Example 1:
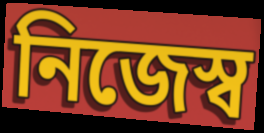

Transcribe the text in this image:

নিজেস্ব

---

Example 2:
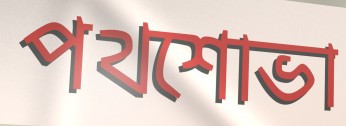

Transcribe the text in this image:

পথশোভা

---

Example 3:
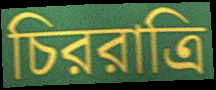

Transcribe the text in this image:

চিররাত্রি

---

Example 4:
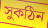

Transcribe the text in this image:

সুকঠিন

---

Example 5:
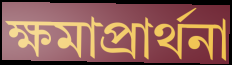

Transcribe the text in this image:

ক্ষমাপ্রার্থনা